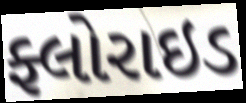
ફ્લોરાઇડ